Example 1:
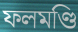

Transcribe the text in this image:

ফলমণ্ডি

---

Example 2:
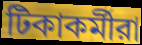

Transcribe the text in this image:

টিকাকর্মীরা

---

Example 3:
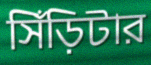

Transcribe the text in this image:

সিঁড়িটার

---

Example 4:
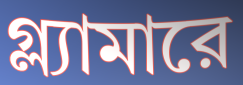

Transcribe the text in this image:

গ্ল্যামারে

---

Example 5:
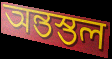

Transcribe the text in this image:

অন্তস্তল